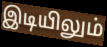
இடியிலும்